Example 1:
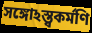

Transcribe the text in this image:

সঙ্গোঽস্ত্বকর্মণি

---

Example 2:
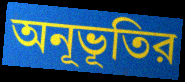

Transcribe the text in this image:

অনূভূতির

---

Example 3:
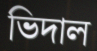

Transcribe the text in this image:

ভিদাল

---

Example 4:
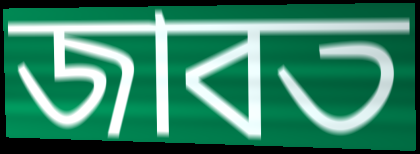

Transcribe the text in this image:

জাবত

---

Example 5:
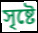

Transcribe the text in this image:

সৃষ্টে